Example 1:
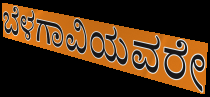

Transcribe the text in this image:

ಬೆಳಗಾವಿಯವರೇ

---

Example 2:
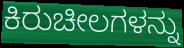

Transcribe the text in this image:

ಕಿರುಚೀಲಗಳನ್ನು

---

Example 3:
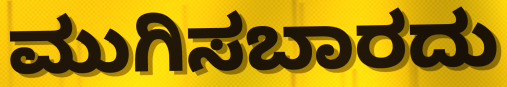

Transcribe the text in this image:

ಮುಗಿಸಬಾರದು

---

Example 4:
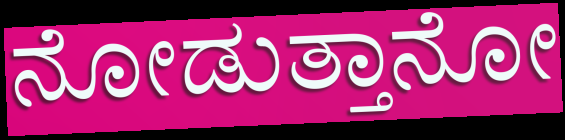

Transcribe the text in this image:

ನೋಡುತ್ತಾನೋ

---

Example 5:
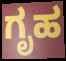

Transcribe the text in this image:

ಗೃಹ